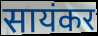
सायंकर